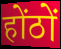
होंठों